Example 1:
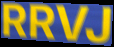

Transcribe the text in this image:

RRVJ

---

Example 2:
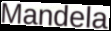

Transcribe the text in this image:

Mandela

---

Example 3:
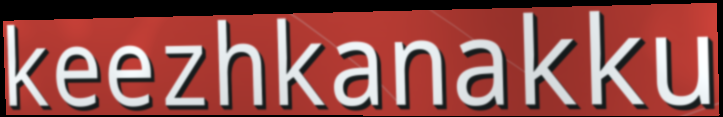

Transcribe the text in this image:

keezhkanakku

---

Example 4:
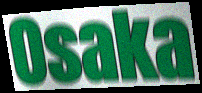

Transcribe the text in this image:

Osaka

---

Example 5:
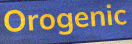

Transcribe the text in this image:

Orogenic